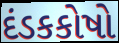
દંડકકોષો